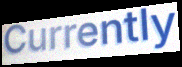
Currently